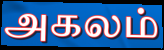
அகலம்